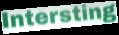
Intersting